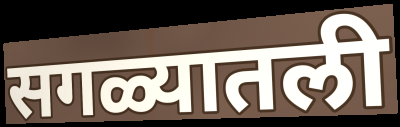
सगळ्यातली